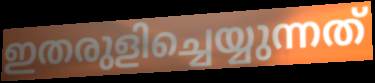
ഇതരുളിച്ചെയ്യുന്നത്